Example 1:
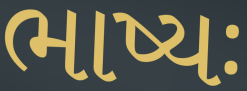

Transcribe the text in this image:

ભાષ્યઃ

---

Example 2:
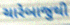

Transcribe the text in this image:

ચારેબાજુથી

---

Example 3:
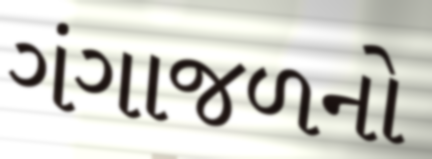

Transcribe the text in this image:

ગંગાજળનો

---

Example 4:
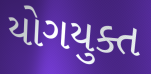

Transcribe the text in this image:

યોગયુક્ત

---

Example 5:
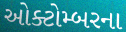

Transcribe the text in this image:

ઓક્ટોમ્બરના